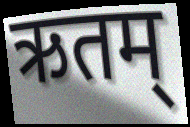
ऋतम्